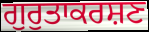
ਗੁਰੁਤਾਕਰਸ਼ਣ